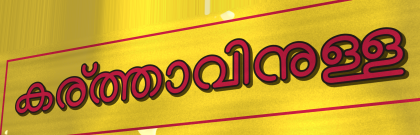
കര്ത്താവിനുള്ള